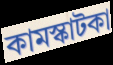
কামস্কাটকা